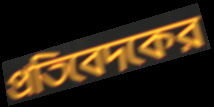
প্রতিবেদকের